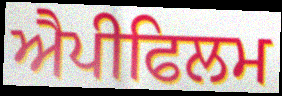
ਐਪੀਫਿਲਮ